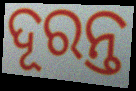
ଦୂରନ୍ତ